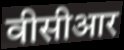
वीसीआर